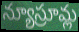
న్యూస్రూమ్ల